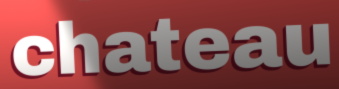
chateau